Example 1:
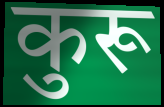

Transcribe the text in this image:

कुरू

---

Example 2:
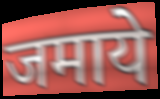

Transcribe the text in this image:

जमाये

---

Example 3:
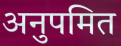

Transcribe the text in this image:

अनुपमित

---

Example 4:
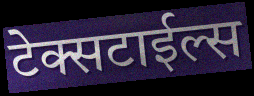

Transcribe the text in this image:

टेक्सटाईल्स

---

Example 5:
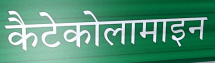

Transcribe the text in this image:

कैटेकोलामाइन